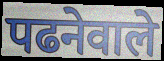
पढनेवाले